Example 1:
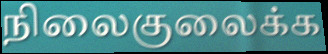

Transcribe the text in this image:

நிலைகுலைக்க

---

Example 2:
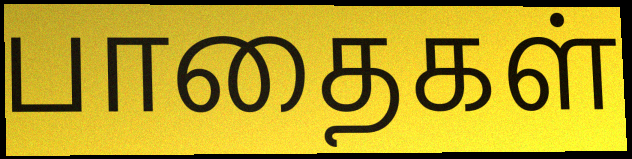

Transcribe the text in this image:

பாதைகள்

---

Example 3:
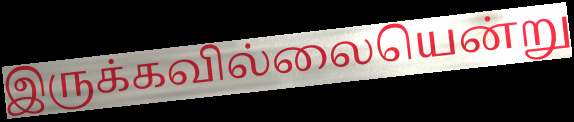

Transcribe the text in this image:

இருக்கவில்லையென்று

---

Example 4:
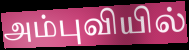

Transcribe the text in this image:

அம்புவியில்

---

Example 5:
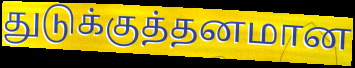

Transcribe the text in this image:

துடுக்குத்தனமான